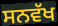
ਸਨਵੱਖ